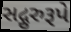
સદ્ગુરુરૂપે